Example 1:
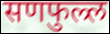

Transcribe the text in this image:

सणफुल्ल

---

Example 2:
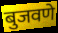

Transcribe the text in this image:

बुजवणे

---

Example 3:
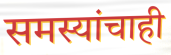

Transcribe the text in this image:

समस्यांचाही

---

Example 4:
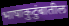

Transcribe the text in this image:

भाषाकुटुंबातील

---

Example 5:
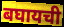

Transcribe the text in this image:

बघायची